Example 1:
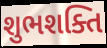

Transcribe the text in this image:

શુભશક્તિ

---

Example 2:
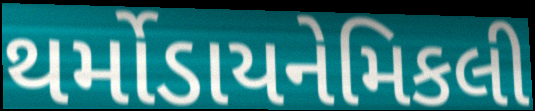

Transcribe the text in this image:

થર્મોડાયનેમિકલી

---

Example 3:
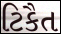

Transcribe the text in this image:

ટિકૈત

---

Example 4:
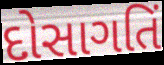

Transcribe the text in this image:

દોસાગતિં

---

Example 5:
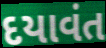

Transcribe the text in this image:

દયાવંત